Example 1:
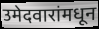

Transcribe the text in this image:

उमेदवारांमधून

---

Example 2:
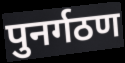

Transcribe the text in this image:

पुनर्गठण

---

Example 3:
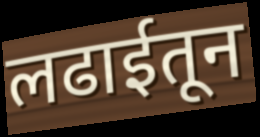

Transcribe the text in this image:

लढाईतून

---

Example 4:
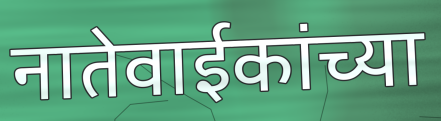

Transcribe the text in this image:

नातेवाईकांच्या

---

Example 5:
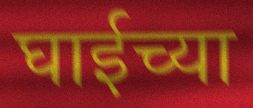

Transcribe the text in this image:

घाईच्या